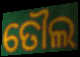
ତୌଲ